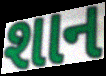
શાન